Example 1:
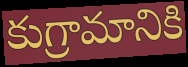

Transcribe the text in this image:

కుగ్రామానికి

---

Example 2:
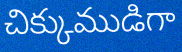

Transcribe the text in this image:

చిక్కుముడిగా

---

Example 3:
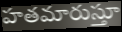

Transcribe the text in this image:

హతమారుస్తూ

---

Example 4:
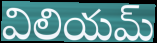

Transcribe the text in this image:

విలియమ్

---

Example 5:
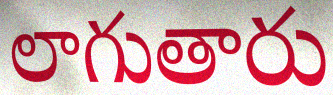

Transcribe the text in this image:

లాగుతారు